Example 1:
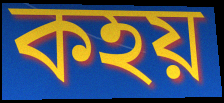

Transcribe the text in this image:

কহয়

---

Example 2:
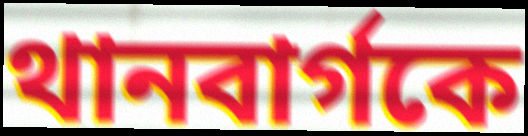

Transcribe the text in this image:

থানবার্গকে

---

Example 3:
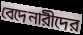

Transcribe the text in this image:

বেদেনারীদের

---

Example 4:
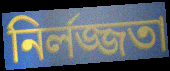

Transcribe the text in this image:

নির্লজ্জতা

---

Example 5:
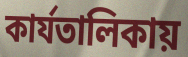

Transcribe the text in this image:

কার্যতালিকায়